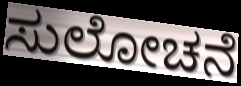
ಸುಲೋಚನೆ